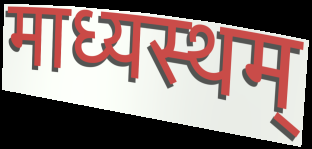
माध्यस्थम्